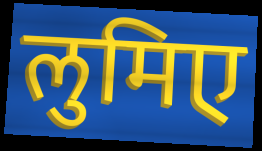
लुमिए